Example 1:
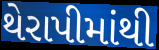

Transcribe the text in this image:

થેરાપીમાંથી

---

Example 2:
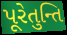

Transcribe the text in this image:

પૂરેતુન્તિ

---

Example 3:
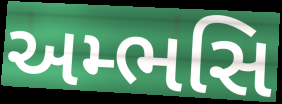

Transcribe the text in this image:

અમ્ભસિ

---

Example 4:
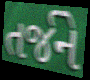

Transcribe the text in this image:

તર્જને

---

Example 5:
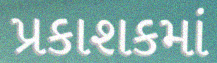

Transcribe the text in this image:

પ્રકાશકમાં